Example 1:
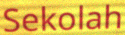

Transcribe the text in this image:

Sekolah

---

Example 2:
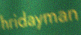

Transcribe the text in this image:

hridayman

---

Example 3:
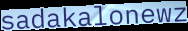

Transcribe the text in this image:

sadakalonewz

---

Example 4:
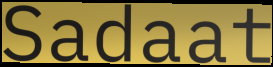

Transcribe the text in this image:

Sadaat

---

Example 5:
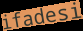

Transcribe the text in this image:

ifadesi